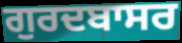
ਗੁਰਦਬਾਸਰ